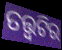
ତତ୍ତ୍ଵଟିର